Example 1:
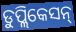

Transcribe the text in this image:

ଡୁପ୍ଲିକେସନ୍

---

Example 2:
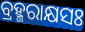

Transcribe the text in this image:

ବ୍ରହ୍ମରାକ୍ଷସଃ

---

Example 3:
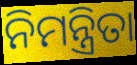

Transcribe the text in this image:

ନିମନ୍ତ୍ରିତା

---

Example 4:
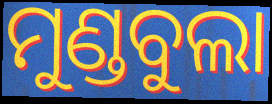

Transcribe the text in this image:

ମୁଣ୍ଡବୁଲା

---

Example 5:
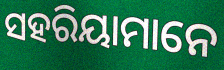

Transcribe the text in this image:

ସହରିୟାମାନେ